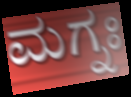
ಮಗ್ನಃ